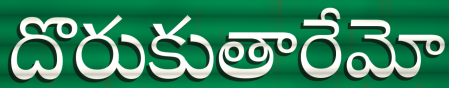
దొరుకుతారేమో